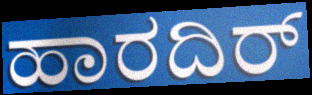
ಹಾರದಿರ್